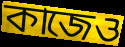
কাজেও